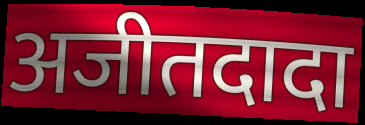
अजीतदादा